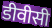
डीवीसी